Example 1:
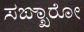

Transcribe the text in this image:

ಸಙ್ಖಾರೋ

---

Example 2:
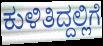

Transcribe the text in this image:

ಕುಳಿತಿದ್ದಲ್ಲಿಗೆ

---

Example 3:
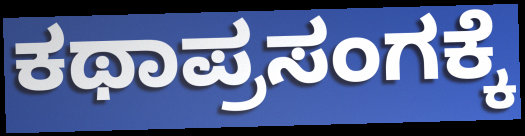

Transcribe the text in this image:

ಕಥಾಪ್ರಸಂಗಕ್ಕೆ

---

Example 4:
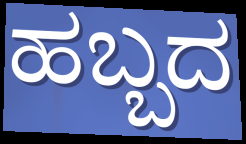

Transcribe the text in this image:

ಹಬ್ಬದ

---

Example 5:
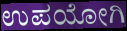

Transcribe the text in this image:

ಉಪಯೋಗಿ